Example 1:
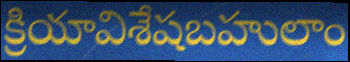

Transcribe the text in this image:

క్రియావిశేషబహులాం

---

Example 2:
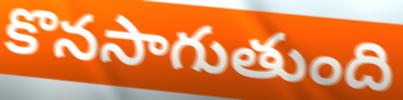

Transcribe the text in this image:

కొనసాగుతుంది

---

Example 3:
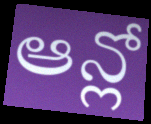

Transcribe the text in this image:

ఆన్లో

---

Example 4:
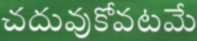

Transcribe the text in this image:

చదువుకోవటమే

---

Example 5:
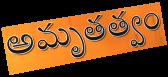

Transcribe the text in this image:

అమృతత్వం